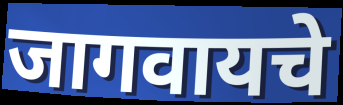
जागवायचे